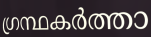
ഗ്രന്ഥകർത്താ